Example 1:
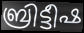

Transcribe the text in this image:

ബ്രിട്ടീഷ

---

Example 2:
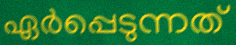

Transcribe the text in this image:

ഏർപ്പെടുന്നത്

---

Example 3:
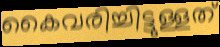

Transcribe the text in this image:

കൈവരിച്ചിട്ടുള്ളത്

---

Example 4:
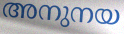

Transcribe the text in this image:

അനുനയ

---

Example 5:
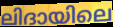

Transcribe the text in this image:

ലിദായിലെ